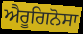
ਐਰੂਗਿਨੋਸਾ